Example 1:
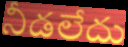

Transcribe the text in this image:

నీడలేదు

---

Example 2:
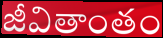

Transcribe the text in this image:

జీవితాంతం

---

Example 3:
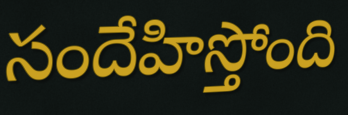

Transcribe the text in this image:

సందేహిస్తోంది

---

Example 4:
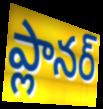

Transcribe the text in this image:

ప్లానర్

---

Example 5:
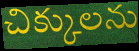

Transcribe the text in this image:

చిక్కులను